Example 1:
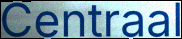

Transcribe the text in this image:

Centraal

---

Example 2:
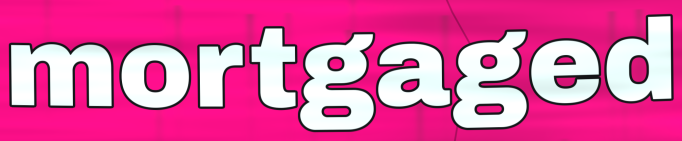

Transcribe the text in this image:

mortgaged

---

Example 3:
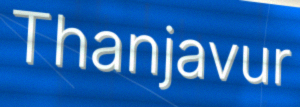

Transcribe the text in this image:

Thanjavur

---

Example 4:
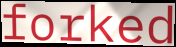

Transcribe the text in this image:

forked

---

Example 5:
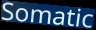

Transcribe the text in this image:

Somatic